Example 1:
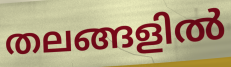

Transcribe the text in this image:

തലങ്ങളിൽ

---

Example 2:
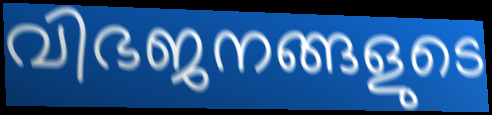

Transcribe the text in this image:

വിഭജനങ്ങളുടെ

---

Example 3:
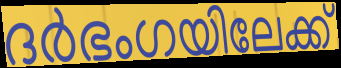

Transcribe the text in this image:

ദർഭംഗയിലേക്ക്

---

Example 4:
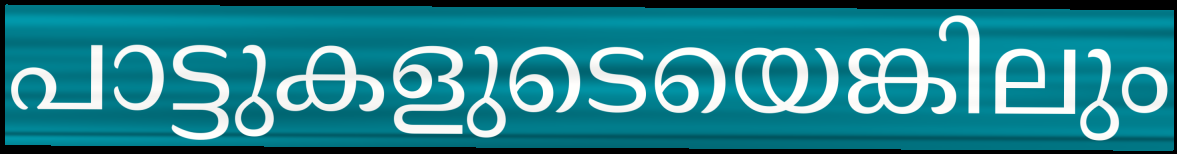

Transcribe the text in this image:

പാട്ടുകളുടെയെങ്കിലും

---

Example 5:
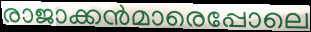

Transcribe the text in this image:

രാജാക്കൻമാരെപ്പോലെ